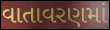
વાતાવરણમાં